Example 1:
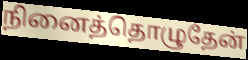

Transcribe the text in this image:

நினைத்தொழுதேன்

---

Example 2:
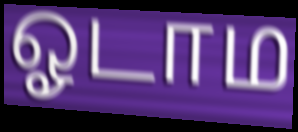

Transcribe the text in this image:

ஓடாம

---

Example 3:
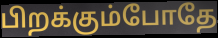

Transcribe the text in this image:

பிறக்கும்போதே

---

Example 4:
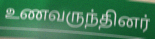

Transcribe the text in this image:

உணவருந்தினர்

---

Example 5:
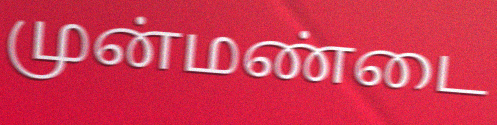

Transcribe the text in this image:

முன்மண்டை